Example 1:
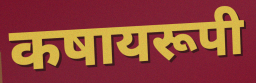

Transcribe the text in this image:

कषायरूपी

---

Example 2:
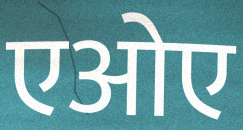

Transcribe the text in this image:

एओए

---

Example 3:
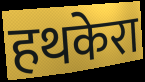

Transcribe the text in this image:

हथकेरा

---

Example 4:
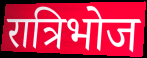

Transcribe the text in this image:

रात्रिभोज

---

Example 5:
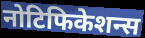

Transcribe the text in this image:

नोटिफिकेशन्स